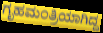
ಗೃಹಮಂತ್ರಿಯಾಗಿದ್ದ